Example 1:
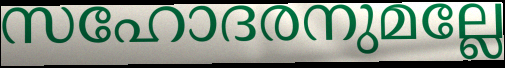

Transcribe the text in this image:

സഹോദരനുമല്ലേ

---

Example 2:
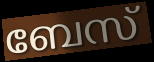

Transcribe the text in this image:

ബേസ്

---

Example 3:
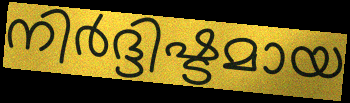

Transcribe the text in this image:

നിർദ്ദിഷ്ടമായ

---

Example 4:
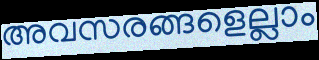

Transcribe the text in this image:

അവസരങ്ങളെല്ലാം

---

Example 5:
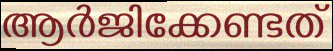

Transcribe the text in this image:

ആർജിക്കേണ്ടത്